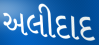
અલીદાદ